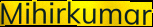
Mihirkumar